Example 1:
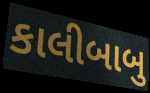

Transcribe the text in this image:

કાલીબાબુ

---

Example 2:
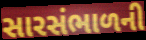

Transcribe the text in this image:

સારસંભાળની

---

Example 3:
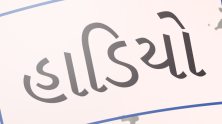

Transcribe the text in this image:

હાડિયો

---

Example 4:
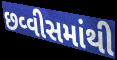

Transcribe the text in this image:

છવ્વીસમાંથી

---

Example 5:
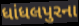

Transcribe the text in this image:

ધાંધલપુરના